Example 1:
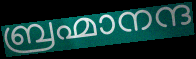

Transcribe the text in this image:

ബ്രഹ്മാനന്ദ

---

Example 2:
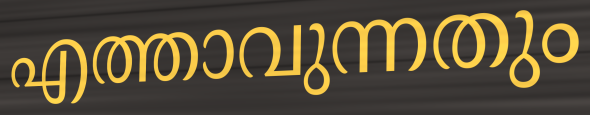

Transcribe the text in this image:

എത്താവുന്നതും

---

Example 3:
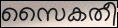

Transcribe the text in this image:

സൈകതീ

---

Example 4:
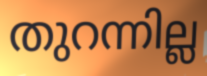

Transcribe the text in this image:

തുറന്നില്ല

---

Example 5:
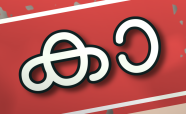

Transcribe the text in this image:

കാ